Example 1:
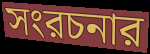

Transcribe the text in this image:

সংরচনার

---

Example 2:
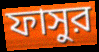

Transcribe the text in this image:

ফাসুর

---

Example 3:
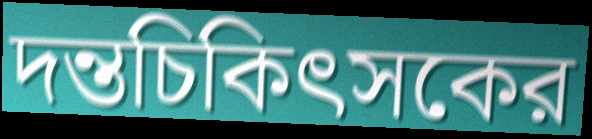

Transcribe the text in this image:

দন্তচিকিৎসকের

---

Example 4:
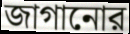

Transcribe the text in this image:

জাগানোর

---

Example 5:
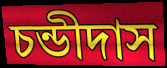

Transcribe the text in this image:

চন্ডীদাস